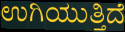
ಉಗಿಯುತ್ತಿದೆ